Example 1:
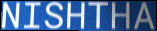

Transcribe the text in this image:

NISHTHA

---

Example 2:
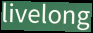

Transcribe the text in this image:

livelong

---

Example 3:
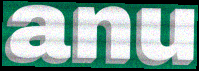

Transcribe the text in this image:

anu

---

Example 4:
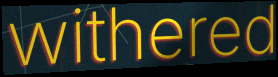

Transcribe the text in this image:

withered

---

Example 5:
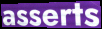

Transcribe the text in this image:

asserts